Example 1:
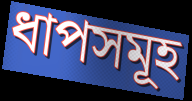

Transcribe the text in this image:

ধাপসমূহ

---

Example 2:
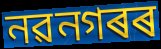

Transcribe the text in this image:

নৱনগৰৰ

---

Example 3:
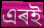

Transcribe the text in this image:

এৰই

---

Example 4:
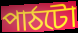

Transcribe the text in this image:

পাঠটো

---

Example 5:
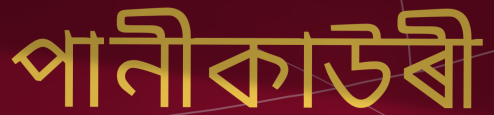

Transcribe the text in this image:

পানীকাউৰী